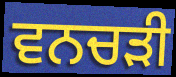
ਵਨਚੜੀ